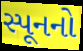
સ્પૂનનો